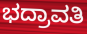
ಭದ್ರಾವತಿ